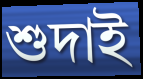
শুদাই